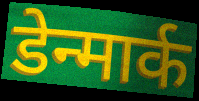
डेन्मार्क